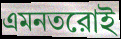
এমনতরোই